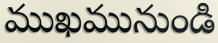
ముఖమునుండి